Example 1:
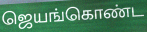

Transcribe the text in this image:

ஜெயங்கொண்ட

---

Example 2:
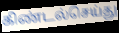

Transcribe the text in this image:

கிண்டல்செய்து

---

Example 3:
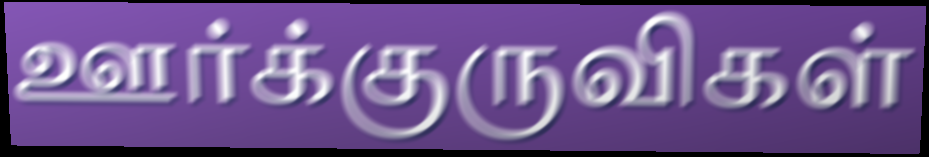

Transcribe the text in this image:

ஊர்க்குருவிகள்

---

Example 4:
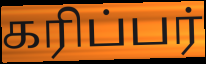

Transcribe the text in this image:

கரிப்பர்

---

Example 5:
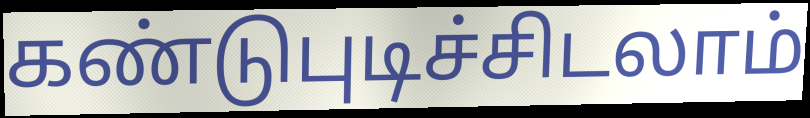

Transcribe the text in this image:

கண்டுபுடிச்சிடலாம்